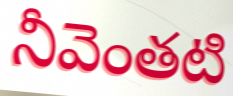
నీవెంతటి